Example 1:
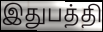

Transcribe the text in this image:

இதுபத்தி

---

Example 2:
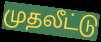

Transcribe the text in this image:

முதலீட்டு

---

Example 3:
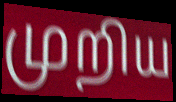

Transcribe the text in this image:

முறிய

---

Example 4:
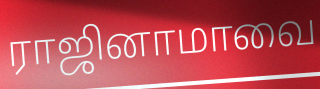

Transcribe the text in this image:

ராஜினாமாவை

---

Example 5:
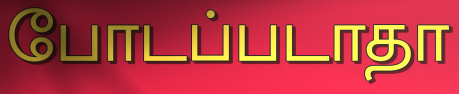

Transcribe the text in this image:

போடப்படாதா